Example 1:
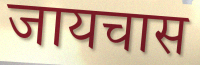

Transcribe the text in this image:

जायचास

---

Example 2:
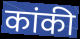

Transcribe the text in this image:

कांकी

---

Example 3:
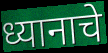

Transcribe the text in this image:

ध्यानाचे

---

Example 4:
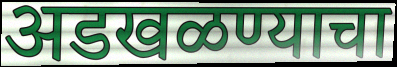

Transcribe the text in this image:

अडखळण्याचा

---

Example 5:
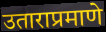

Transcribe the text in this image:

उताराप्रमाणे